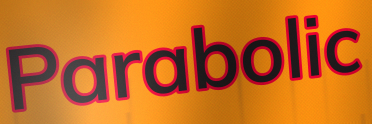
Parabolic